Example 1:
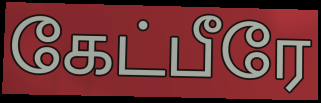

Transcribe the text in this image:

கேட்பீரே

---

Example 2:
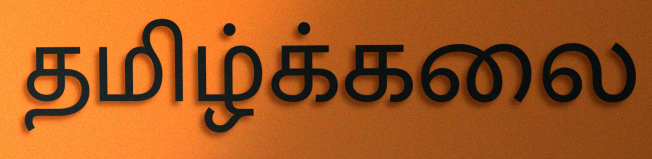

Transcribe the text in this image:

தமிழ்க்கலை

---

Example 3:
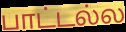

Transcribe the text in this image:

பாட்டல்ல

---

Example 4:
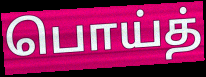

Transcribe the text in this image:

பொய்த்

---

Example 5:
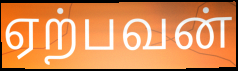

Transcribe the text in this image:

ஏற்பவன்